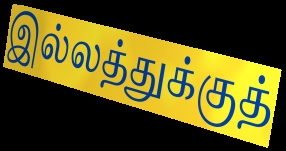
இல்லத்துக்குத்